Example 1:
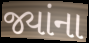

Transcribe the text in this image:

જ્યાંના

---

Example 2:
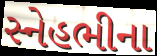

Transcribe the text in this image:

સ્નેહભીના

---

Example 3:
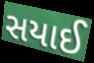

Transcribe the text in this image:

સયાઈ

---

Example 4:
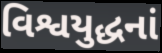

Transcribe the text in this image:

વિશ્વયુદ્ધનાં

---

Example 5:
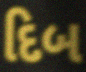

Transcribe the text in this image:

દિબ